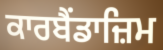
ਕਾਰਬੈਂਡਾਜ਼ਿਮ